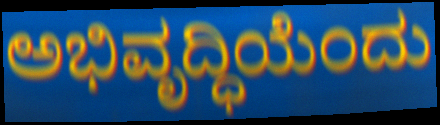
ಅಭಿವೃದ್ಧಿಯೆಂದು